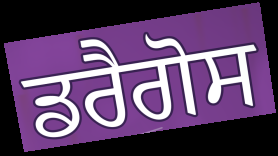
ਡਰੈਗੋਸ